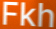
Fkh